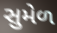
સુમેળ